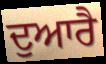
ਦੁਆਰੈ